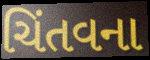
ચિંતવના